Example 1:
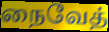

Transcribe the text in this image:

நைவேத்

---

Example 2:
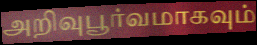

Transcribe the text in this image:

அறிவுபூர்வமாகவும்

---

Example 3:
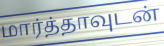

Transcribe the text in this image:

மார்த்தாவுடன்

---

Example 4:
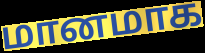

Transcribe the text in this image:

மானமாக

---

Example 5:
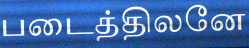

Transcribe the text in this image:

படைத்திலனே